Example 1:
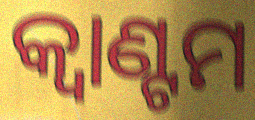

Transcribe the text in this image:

କ୍ୱାଣ୍ଟମ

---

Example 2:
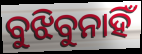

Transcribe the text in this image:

ବୁଝିବୁନାହିଁ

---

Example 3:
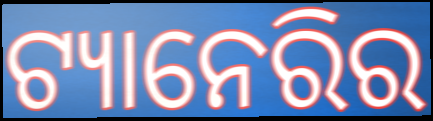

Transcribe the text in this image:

ଟ୍ୟାନେରିର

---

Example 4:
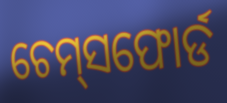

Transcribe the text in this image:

ଚେମ୍‌ସଫୋର୍ଡ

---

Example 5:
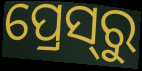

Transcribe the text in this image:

ପ୍ରେସ୍‌ରୁ